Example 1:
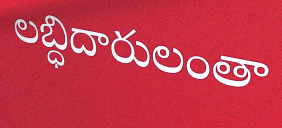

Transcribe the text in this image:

లబ్ధిదారులంతా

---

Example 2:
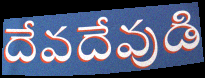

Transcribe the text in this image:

దేవదేవుడి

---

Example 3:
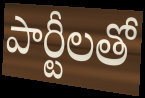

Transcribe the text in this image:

పార్టీలతో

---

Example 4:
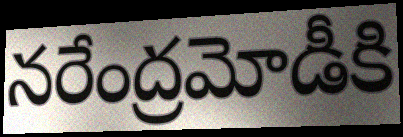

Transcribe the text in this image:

నరేంద్రమోడీకి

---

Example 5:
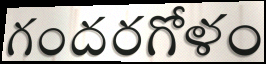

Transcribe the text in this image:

గందరగోళం